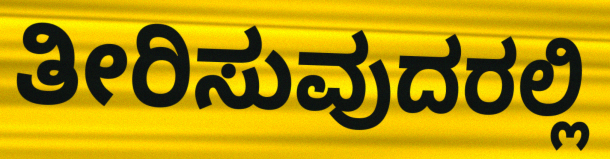
ತೀರಿಸುವುದರಲ್ಲಿ